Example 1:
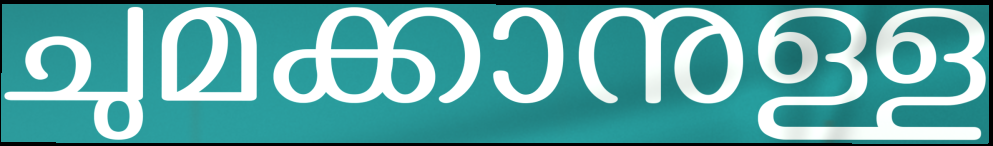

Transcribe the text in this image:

ചുമക്കാനുള്ള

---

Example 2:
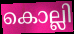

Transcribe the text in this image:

കൊല്ലി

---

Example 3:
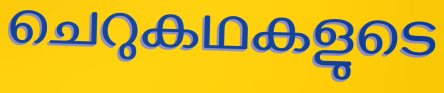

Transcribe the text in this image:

ചെറുകഥകളുടെ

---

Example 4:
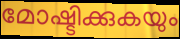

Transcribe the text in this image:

മോഷ്ടിക്കുകയും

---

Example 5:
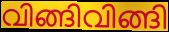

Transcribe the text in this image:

വിങ്ങിവിങ്ങി